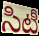
సిటీ